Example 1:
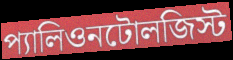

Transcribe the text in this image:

প্যালিওনটোলজিস্ট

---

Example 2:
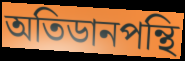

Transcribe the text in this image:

অতিডানপন্থি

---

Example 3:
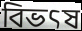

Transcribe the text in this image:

বিভৎষ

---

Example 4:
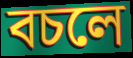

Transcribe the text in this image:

বচলে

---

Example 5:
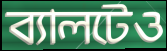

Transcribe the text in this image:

ব্যালটেও